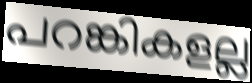
പറങ്കികളല്ല